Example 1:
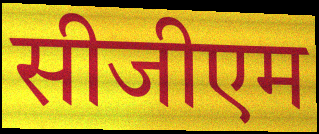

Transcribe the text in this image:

सीजीएम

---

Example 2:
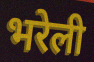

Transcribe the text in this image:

भरेली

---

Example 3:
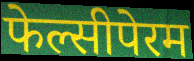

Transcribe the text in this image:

फेल्सीपेरम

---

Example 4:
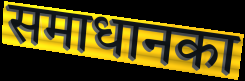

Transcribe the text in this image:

समाधानका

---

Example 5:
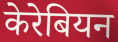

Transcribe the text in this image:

केरेबियन